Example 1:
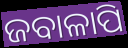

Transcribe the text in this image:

ଜବାଳାପି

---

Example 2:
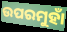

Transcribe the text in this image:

ଉପରମୁହାଁ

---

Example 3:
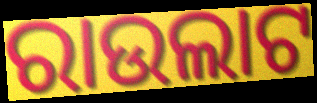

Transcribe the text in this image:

ରାଉଲାଟ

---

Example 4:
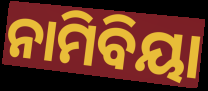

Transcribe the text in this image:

ନାମିବିୟା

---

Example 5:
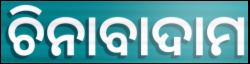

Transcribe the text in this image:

ଚିନାବାଦାମ